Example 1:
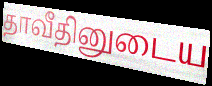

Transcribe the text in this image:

தாவீதினுடைய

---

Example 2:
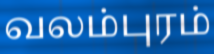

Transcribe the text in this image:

வலம்புரம்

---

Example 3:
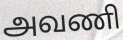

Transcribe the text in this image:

அவணி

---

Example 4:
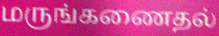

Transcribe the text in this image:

மருங்கணைதல்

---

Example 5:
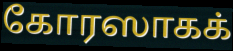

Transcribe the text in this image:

கோரஸாகக்